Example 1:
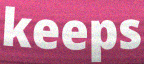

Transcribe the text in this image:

keeps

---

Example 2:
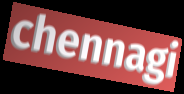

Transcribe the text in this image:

chennagi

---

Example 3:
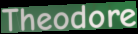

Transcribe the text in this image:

Theodore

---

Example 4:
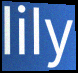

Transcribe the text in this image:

lily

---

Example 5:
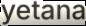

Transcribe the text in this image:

yetana